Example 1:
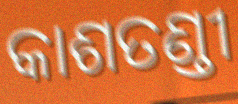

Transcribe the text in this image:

କାଶତଣ୍ଡୀ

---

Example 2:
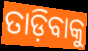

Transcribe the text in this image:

ତାଡ଼ିବାକୁ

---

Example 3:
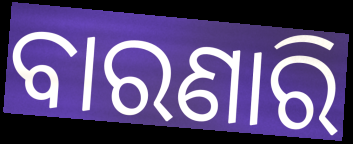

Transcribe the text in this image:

ବାରଣାରି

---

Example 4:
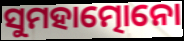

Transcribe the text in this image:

ସୁମହାତ୍ମୋନୋ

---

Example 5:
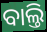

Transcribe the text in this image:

ବାଲ୍ତି